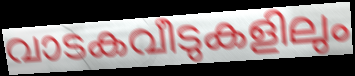
വാടകവീടുകളിലും